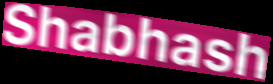
Shabhash